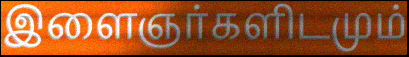
இளைஞர்களிடமும்